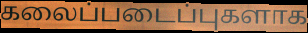
கலைப்படைப்புகளாக